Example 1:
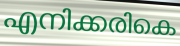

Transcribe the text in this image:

എനിക്കരികെ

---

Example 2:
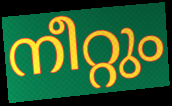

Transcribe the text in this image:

നീറ്റും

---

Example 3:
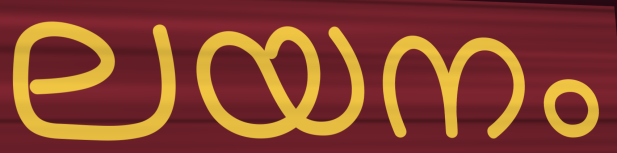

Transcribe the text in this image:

ലയനം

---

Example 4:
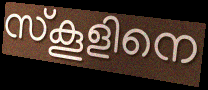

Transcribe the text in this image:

സ്കൂളിനെ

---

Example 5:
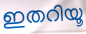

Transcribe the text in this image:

ഇതറിയൂ